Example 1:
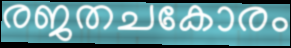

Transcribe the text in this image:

രജതചകോരം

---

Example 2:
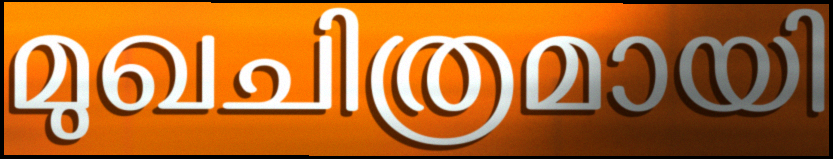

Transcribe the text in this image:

മുഖചിത്രമായി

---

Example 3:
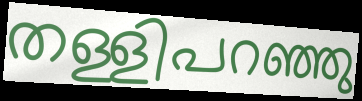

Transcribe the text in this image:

തള്ളിപറഞ്ഞു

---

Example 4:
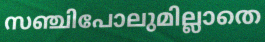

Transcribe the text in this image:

സഞ്ചിപോലുമില്ലാതെ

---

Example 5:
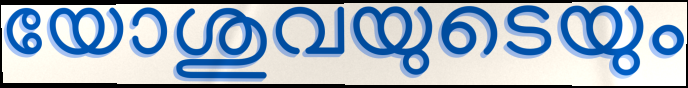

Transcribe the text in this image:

യോശുവയുടെയും